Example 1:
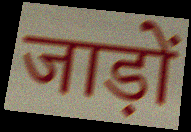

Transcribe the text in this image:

जाड़ों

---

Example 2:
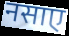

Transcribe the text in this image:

नसाए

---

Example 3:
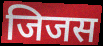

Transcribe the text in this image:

जिजस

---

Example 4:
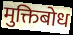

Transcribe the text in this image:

मुक्तिबोध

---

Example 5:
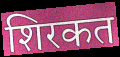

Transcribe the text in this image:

शिरकत